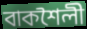
বাকশৈলী